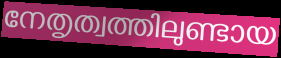
നേതൃത്വത്തിലുണ്ടായ